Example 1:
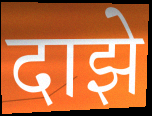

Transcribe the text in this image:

दाझे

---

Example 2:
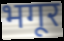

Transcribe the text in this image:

भगूर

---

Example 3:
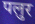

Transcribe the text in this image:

पलुर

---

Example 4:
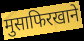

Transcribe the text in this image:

मुसाफिरखाने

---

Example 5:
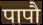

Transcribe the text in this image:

पापौ